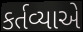
કર્તવ્યાએ